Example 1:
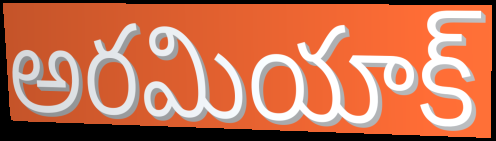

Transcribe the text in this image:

అరమియాక్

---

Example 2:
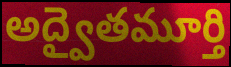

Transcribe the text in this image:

అద్వైతమూర్తి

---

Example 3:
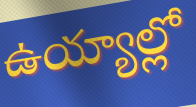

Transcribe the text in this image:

ఉయ్యాల్లో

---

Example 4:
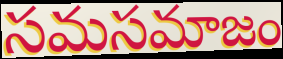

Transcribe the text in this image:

సమసమాజం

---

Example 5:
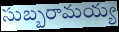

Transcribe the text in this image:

సుబ్బరామయ్య